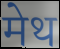
मेथ